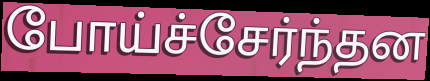
போய்ச்சேர்ந்தன